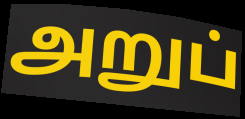
அறுப்